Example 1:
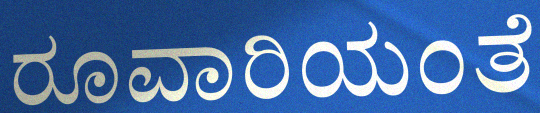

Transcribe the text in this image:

ರೂವಾರಿಯಂತೆ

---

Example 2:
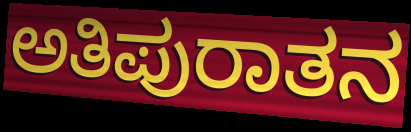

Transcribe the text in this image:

ಅತಿಪುರಾತನ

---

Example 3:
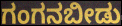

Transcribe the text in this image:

ಗಂಗನಬೀಡು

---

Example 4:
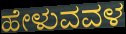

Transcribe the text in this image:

ಹೇಳುವವಳ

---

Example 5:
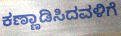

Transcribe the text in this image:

ಕಣ್ಣಾಡಿಸಿದವಳಿಗೆ